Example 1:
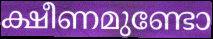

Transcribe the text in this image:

ക്ഷീണമുണ്ടോ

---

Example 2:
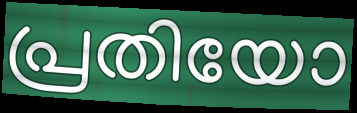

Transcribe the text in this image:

പ്രതിയോ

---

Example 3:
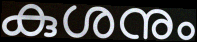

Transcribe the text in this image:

കുശനും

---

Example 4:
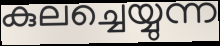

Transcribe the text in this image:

കുലച്ചെയ്യുന്ന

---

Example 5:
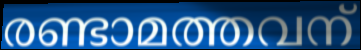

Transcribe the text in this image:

രണ്ടാമത്തവന്